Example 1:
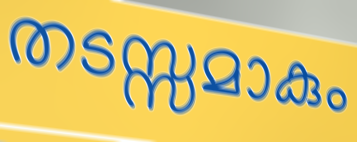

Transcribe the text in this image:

തടസ്സമാകും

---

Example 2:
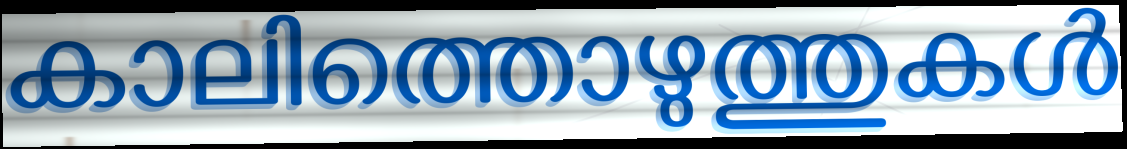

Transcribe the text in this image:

കാലിത്തൊഴുത്തുകൾ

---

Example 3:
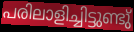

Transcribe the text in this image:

പരിലാളിച്ചിട്ടുണ്ടു്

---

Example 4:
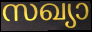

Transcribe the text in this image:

സഖ്യാ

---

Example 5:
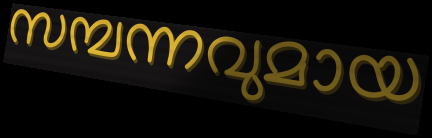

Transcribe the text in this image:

സമ്പന്നവുമായ